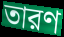
তারণ